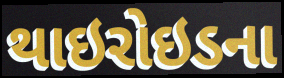
થાઇરોઇડના